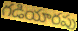
గడియారపు